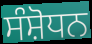
ਸੰਸ਼ੋਧਨ